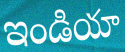
ఇండియా